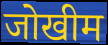
जोखीम